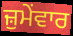
ਜ਼ੁਮੇਂਵਾਰ